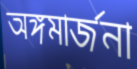
অঙ্গমার্জনা